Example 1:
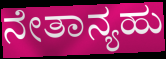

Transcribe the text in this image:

ನೇತಾನ್ಯಹು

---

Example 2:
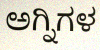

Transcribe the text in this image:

ಅಗ್ನಿಗಳ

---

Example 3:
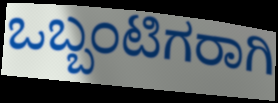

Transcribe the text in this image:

ಒಬ್ಬಂಟಿಗರಾಗಿ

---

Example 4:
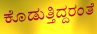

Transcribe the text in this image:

ಕೊಡುತ್ತಿದ್ದರಂತೆ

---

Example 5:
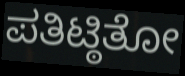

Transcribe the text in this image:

ಪತಿಟ್ಠಿತೋ